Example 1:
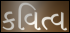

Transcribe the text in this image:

કવિત્વ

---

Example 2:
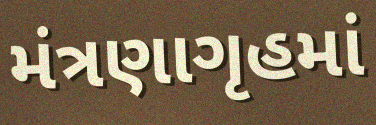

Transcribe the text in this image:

મંત્રણાગૃહમાં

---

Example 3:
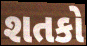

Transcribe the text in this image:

શતકો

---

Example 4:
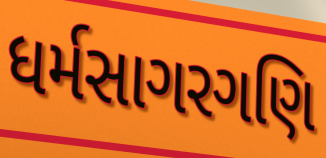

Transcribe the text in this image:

ધર્મસાગરગણિ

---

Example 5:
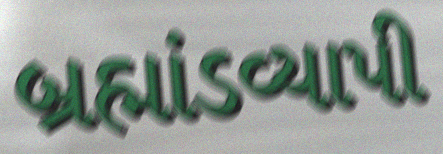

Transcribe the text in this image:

બ્રહ્માંડવ્યાપી